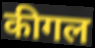
कीगल